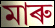
মাৰু